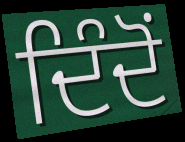
ਦਿੰਦੋਂ